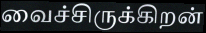
வைச்சிருக்கிறன்